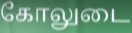
கோலுடை